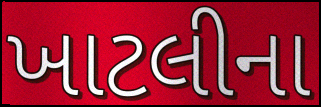
ખાટલીના